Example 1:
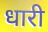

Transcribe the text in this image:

धारी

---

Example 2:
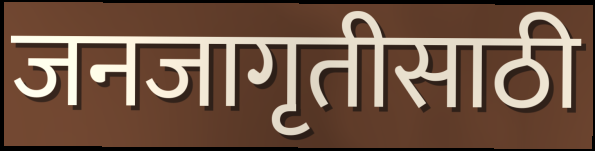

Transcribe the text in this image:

जनजागृतीसाठी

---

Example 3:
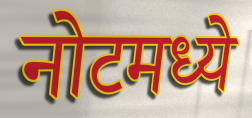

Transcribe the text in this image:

नोटमध्ये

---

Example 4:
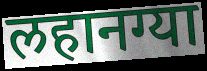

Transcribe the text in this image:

लहानग्या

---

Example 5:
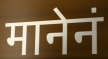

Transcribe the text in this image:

मानेनं